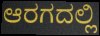
ಆರಗದಲ್ಲಿ